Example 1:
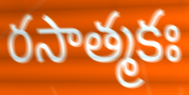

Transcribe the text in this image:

రసాత్మకః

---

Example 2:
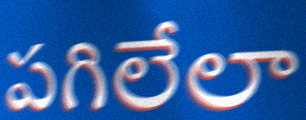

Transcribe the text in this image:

పగిలేలా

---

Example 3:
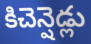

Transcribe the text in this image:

కిచెన్షెడ్లు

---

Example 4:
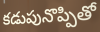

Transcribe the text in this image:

కడుపునొప్పితో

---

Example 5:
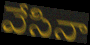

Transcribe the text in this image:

వేసినా